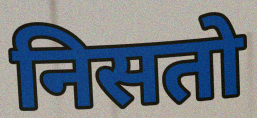
निसतो